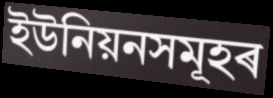
ইউনিয়নসমূহৰ